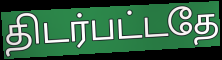
திடர்பட்டதே